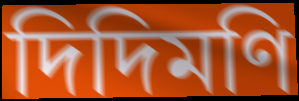
দিদিমণি